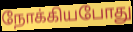
நோக்கியபோது